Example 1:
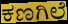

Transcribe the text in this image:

ಕಣಗಿಲೆ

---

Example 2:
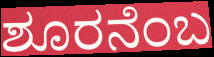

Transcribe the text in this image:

ಶೂರನೆಂಬ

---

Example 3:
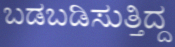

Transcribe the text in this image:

ಬಡಬಡಿಸುತ್ತಿದ್ದ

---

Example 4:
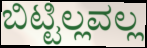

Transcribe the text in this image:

ಬಿಟ್ಟಿಲ್ಲವಲ್ಲ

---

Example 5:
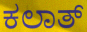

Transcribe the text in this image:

ಕಲಾತ್